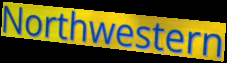
Northwestern